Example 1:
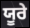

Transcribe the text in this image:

ਯੂਰੇ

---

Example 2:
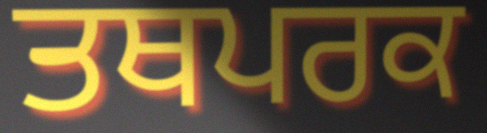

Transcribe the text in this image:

ਤਥਪਰਕ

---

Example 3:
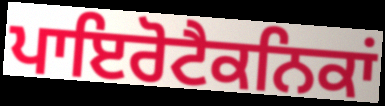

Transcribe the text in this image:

ਪਾਇਰੋਟੈਕਨਿਕਾਂ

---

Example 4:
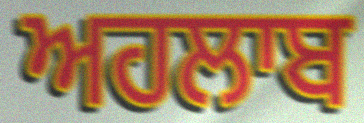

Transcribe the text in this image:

ਅਹਲਾਬ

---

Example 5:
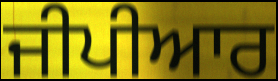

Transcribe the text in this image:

ਜੀਪੀਆਰ